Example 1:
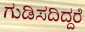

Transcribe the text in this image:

ಗುಡಿಸದಿದ್ದರೆ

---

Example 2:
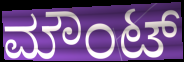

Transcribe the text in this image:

ಮೌಂಟ್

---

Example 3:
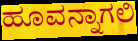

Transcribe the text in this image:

ಹೂವನ್ನಾಗಲಿ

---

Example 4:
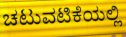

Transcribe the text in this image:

ಚಟುವಟಿಕೆಯಲ್ಲಿ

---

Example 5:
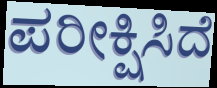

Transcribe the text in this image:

ಪರೀಕ್ಷಿಸಿದೆ